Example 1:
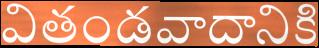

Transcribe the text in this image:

వితండవాదానికి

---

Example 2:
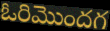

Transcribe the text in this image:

ఓరిమొందగ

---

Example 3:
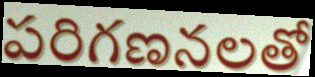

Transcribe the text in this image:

పరిగణనలతో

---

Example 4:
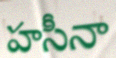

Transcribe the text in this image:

హసీనా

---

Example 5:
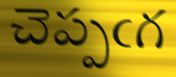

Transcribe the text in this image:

చెప్పఁగ